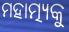
ମହାତ୍ମ୍ୟକୁ